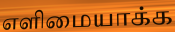
எளிமையாக்க